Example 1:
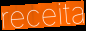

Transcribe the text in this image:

receita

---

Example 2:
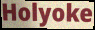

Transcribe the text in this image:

Holyoke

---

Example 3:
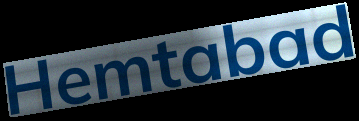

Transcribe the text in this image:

Hemtabad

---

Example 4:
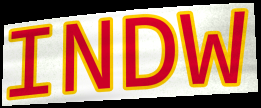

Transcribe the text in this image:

INDW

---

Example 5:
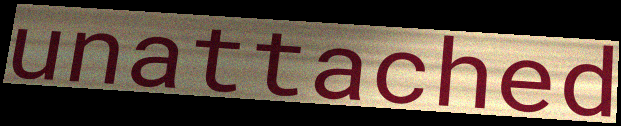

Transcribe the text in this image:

unattached